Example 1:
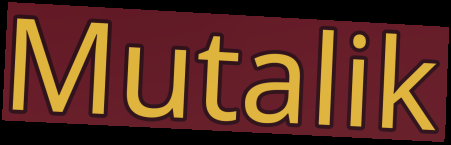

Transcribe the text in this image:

Mutalik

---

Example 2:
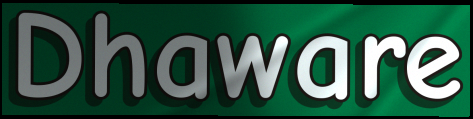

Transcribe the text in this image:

Dhaware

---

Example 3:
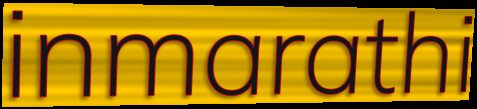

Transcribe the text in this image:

inmarathi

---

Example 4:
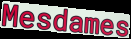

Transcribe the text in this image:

Mesdames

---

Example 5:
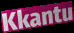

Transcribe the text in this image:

Kkantu